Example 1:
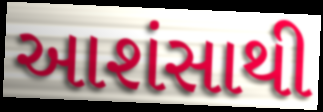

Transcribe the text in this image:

આશંસાથી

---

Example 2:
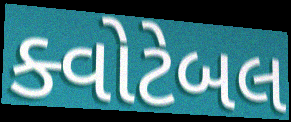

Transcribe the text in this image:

ક્વોટેબલ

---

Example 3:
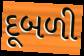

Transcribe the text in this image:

દૂબળી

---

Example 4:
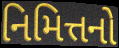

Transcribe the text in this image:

નિમિત્તનો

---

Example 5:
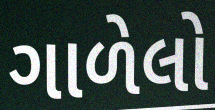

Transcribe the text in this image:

ગાળેલો